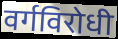
वर्गविरोधी